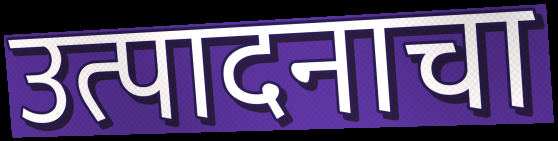
उत्पादनाचा